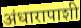
अंधारापाशी